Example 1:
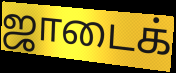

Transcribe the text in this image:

ஜாடைக்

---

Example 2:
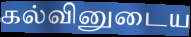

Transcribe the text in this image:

கல்வினுடைய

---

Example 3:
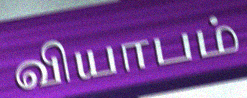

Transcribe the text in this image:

வியாபம்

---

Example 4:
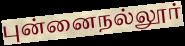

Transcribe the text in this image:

புன்னைநல்லூர்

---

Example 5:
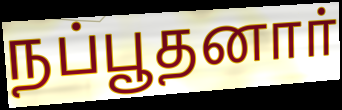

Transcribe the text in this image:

நப்பூதனார்